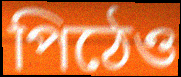
পিঠেও